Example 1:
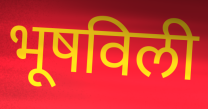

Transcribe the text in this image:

भूषविली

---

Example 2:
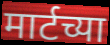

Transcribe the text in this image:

मार्टच्या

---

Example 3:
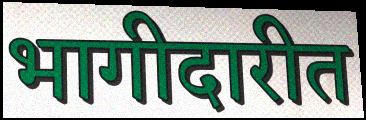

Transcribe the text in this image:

भागीदारीत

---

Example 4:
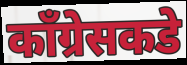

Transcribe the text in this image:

काँग्रेसकडे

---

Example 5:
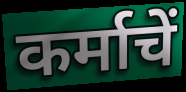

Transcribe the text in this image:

कर्माचें